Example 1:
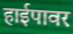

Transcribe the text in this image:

हाईपावर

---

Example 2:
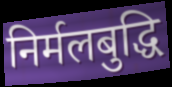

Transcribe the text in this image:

निर्मलबुद्धि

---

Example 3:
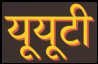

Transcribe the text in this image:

यूयूटी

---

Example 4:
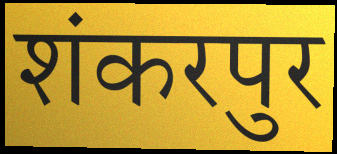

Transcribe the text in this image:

शंकरपुर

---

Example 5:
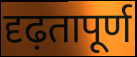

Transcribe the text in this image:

दृढ़तापूर्ण